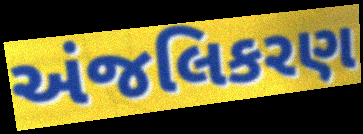
અંજલિકરણ